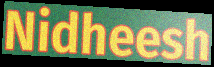
Nidheesh